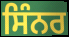
ਸਿੰਨਰ